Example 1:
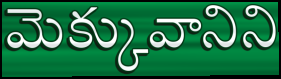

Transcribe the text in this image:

మెక్కువానిని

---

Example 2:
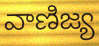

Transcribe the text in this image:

వాణిజ్య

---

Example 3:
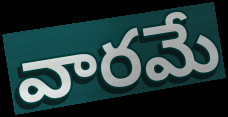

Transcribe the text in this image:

వారమే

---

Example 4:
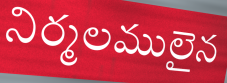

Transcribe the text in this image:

నిర్మలములైన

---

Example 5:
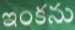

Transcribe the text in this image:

ఇంకను